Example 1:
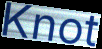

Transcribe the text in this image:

Knot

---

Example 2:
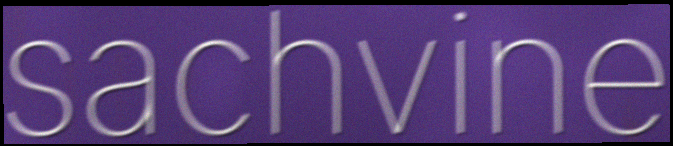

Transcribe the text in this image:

sachvine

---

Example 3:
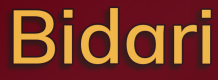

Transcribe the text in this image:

Bidari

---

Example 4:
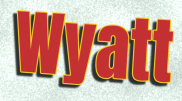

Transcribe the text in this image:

Wyatt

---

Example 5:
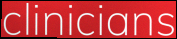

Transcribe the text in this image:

clinicians